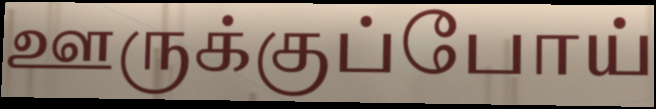
ஊருக்குப்போய்